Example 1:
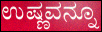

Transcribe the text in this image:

ಉಷ್ಣವನ್ನೂ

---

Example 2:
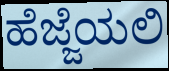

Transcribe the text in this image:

ಹೆಜ್ಜೆಯಲಿ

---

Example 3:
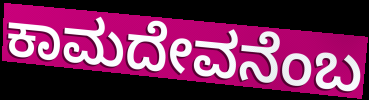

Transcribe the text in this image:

ಕಾಮದೇವನೆಂಬ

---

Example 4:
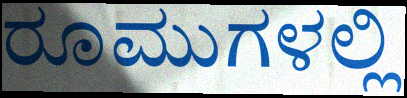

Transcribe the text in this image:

ರೂಮುಗಳಲ್ಲಿ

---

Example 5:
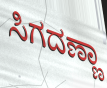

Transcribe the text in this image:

ಸಿಗದಣ್ಣಾ